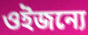
ওইজন্যে